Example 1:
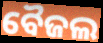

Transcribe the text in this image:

ବୈଜଲ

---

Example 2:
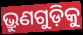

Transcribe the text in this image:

ଭ୍ରୁଣଗୁଡ଼ିକୁ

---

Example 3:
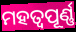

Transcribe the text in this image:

ମହତ୍ବପୂର୍ଣ୍ଣ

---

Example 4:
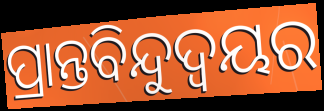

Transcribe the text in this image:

ପ୍ରାନ୍ତବିନ୍ଦୁଦ୍ଵୟର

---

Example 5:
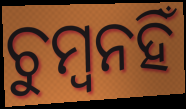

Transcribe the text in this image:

ଚୁମ୍ବନହିଁ